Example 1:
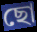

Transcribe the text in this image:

ছো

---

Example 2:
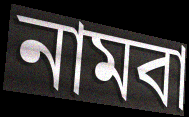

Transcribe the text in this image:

নামবা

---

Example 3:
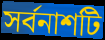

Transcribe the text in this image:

সর্বনাশটি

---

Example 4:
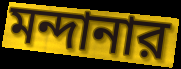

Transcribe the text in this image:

মন্দানার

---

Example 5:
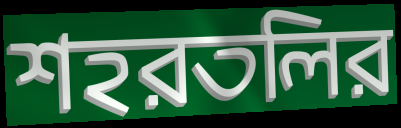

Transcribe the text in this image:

শহরতলির